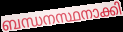
ബന്ധനസ്ഥനാക്കി